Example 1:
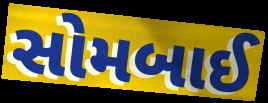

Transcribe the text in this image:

સોમબાઈ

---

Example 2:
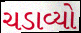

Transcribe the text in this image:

ચડાવ્યો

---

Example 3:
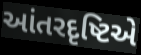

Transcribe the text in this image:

આંતરદૃષ્ટિએ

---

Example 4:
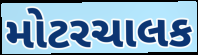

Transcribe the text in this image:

મોટરચાલક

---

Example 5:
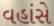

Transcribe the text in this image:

વહાંસે